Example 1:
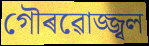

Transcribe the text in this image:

গৌৰৱোজ্জ্বল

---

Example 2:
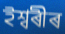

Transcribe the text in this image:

ইশ্বৰীৰ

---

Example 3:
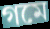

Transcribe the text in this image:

গমে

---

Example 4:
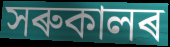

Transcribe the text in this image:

সৰুকালৰ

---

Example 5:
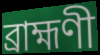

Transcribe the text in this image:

ব্ৰাহ্মণী